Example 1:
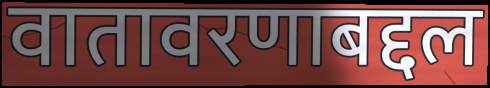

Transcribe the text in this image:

वातावरणाबद्दल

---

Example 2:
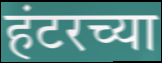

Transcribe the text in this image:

हंटरच्या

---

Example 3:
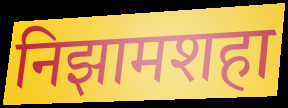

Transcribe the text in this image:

निझामशहा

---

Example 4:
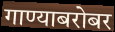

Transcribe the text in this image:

गाण्याबरोबर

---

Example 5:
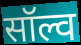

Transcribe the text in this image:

सॉल्व